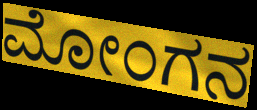
ಮೋಂಗನ